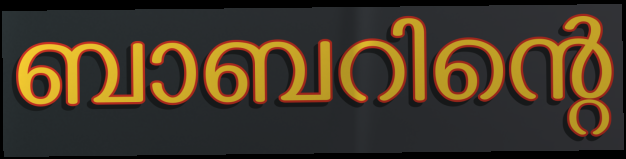
ബാബറിന്റെ